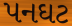
પનઘટ